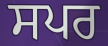
ਸਪਰ